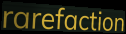
rarefaction